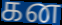
கன